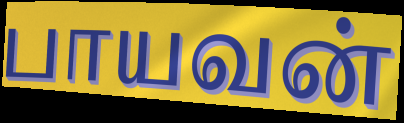
பாயவன்